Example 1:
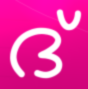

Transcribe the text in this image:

ദ്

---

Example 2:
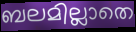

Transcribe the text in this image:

ബലമില്ലാതെ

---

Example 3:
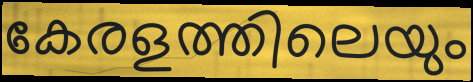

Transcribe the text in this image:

കേരളത്തിലെയും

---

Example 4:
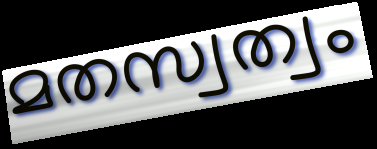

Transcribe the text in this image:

മതസ്വത്വം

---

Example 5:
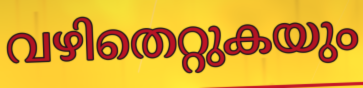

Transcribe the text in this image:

വഴിതെറ്റുകയും